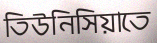
তিউনিসিয়াতে